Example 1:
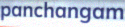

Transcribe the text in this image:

panchangam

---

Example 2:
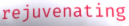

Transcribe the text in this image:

rejuvenating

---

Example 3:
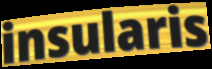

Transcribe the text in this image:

insularis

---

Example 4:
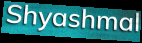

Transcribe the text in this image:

Shyashmal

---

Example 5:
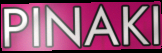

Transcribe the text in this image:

PINAKI